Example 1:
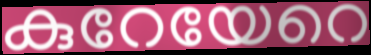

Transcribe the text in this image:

കുറേയേറെ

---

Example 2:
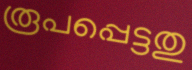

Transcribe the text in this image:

രൂപപ്പെട്ടതു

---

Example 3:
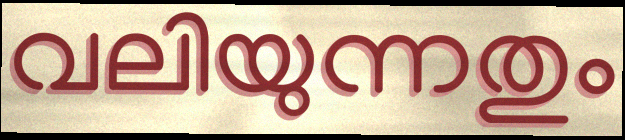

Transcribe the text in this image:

വലിയുന്നതും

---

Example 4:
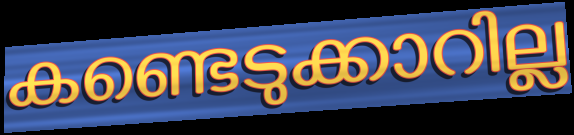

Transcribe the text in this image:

കണ്ടെടുക്കാറില്ല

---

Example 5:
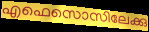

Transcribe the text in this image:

എഫെസൊസിലേക്കു